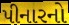
પીનારનો